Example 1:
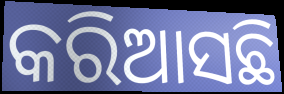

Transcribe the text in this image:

କରିଆସଛି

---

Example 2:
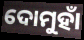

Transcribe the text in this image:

ଦୋମୁହାଁ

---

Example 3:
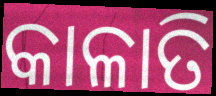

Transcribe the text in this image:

କାଳାତି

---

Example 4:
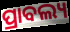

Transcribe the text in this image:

ପ୍ରାବଲ୍ୟ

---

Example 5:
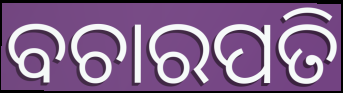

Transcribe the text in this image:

ବଚାରପତି